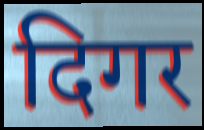
दिगर